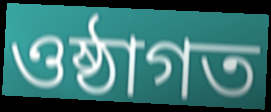
ওষ্ঠাগত